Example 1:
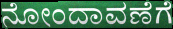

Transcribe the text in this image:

ನೋಂದಾವಣೆಗೆ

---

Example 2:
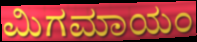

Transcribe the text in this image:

ಮಿಗಮಾಯಂ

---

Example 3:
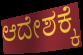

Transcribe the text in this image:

ಆದೇಶಕ್ಕೆ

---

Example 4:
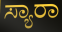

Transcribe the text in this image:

ಸ್ಯಾರಾ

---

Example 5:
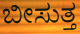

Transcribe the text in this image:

ಬೀಸುತ್ತ